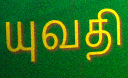
யுவதி